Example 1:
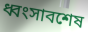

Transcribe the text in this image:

ধ্বংসাবশেষ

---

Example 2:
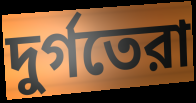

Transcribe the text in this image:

দুর্গতেরা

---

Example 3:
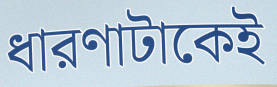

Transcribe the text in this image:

ধারণাটাকেই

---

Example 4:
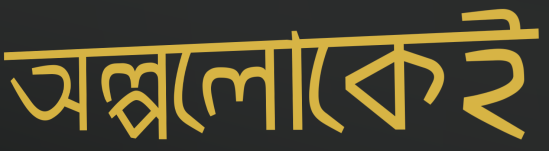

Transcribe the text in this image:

অল্পলোকেই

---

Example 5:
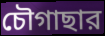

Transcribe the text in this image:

চৌগাছার